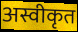
अस्‍वीकृत